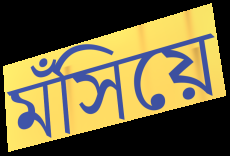
মঁসিয়ে